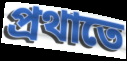
প্ৰথাতে